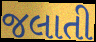
જલાતી